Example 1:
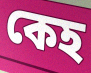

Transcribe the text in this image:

কেহ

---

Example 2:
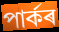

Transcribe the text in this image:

পাৰ্কৰ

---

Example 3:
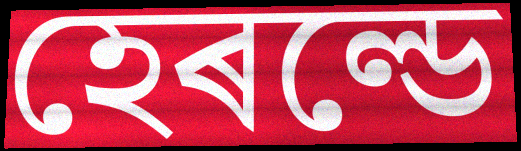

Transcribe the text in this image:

হেৰল্ডে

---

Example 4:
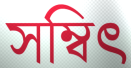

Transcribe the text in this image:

সম্বিৎ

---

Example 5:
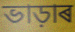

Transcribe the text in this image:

ভাড়াৰ